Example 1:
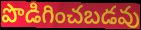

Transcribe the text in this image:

పొడిగించబడవు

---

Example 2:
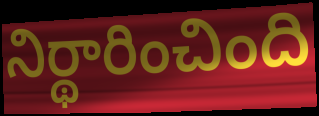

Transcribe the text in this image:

నిర్థారించింది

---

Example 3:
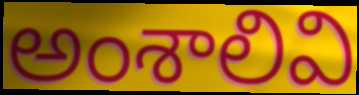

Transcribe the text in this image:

అంశాలివి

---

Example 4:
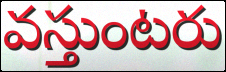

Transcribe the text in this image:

వస్తుంటరు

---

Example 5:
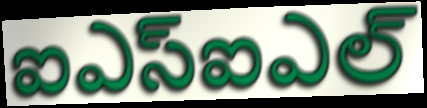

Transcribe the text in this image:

ఐఎస్ఐఎల్